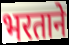
भरताने